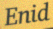
Enid